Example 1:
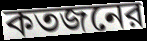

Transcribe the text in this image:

কতজনের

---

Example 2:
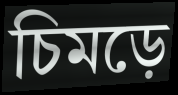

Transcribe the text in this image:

চিমড়ে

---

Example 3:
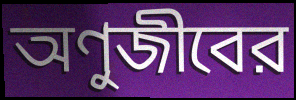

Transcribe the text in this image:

অণুজীবের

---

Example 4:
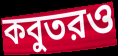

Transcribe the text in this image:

কবুতরও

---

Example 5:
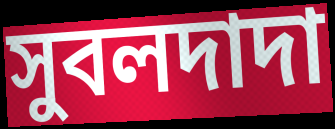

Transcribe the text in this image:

সুবলদাদা